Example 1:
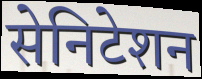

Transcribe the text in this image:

सेनिटेशन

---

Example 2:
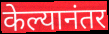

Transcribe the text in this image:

केल्यानंतर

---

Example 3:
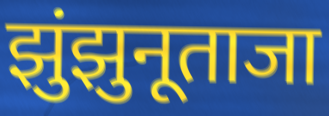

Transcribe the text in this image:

झुंझुनूताजा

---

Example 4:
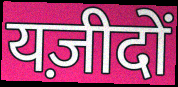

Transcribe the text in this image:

यज़ीदों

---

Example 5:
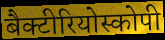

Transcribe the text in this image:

बैक्टीरियोस्कोपी